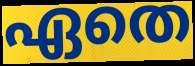
ഏതെ